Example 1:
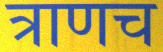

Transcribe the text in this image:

त्राणच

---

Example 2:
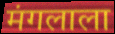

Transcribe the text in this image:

मंगलाला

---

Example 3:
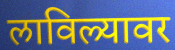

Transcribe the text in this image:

लाविल्यावर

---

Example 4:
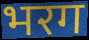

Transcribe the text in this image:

भरग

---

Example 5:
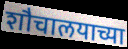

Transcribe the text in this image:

शौचालयाच्या